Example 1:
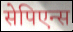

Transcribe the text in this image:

सेपिएन्स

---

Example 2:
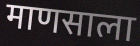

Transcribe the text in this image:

माणसाला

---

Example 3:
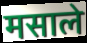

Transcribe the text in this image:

मसाले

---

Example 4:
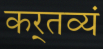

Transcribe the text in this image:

कर्तव्यं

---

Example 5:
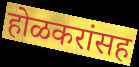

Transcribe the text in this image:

होळकरांसह